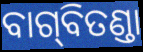
ବାଗ୍‍ବିତଣ୍ଡା